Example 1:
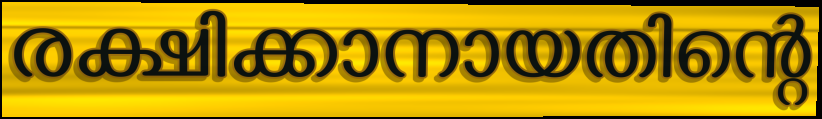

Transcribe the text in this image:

രക്ഷിക്കാനായതിന്റെ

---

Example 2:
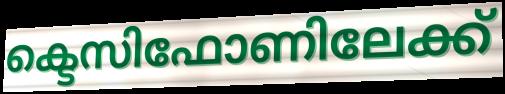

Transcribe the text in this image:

ക്ടെസിഫോണിലേക്ക്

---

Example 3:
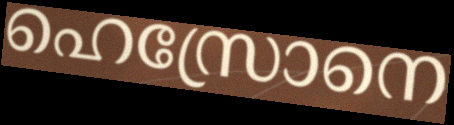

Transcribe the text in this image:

ഹെസ്രോനെ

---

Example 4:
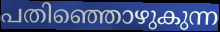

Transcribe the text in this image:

പതിഞ്ഞൊഴുകുന്ന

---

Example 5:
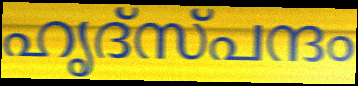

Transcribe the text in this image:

ഹൃദ്സ്പന്ദം